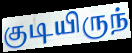
குடியிருந்